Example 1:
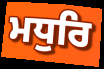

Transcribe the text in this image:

ਮਧੁਰਿ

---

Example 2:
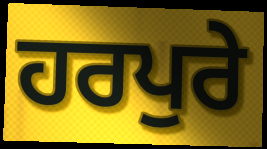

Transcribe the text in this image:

ਹਰਪੁਰੇ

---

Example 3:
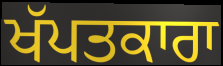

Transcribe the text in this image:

ਖੱਪਤਕਾਰਾ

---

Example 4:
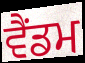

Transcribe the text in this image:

ਵੈਂਡਮ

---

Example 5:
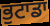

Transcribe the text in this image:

ਭੁਟਾਡਾ